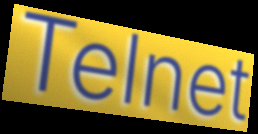
Telnet